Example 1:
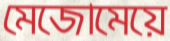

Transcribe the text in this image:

মেজোমেয়ে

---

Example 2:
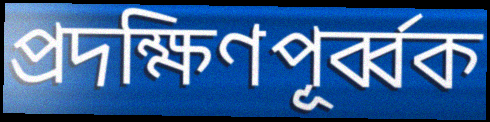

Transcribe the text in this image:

প্রদক্ষিণপূর্ব্বক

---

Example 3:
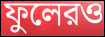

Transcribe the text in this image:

ফুলেরও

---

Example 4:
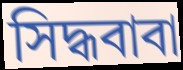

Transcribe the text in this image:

সিদ্ধবাবা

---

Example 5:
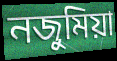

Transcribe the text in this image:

নজুমিয়া